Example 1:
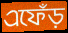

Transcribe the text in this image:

এফেঁড়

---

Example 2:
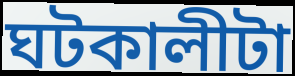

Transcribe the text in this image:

ঘটকালীটা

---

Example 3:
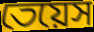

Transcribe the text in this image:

তেয়েস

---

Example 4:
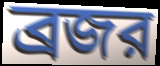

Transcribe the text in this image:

ব্রজর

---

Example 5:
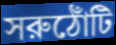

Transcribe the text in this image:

সরুঠোঁটি